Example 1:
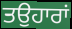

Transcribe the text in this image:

ਤਉਹਾਰਾਂ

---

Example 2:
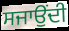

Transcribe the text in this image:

ਸਜਾਉਂਦੀ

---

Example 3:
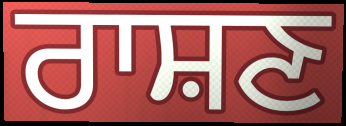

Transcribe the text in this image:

ਰਾਸ਼ਣ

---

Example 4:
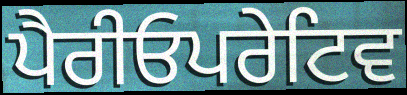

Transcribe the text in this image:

ਪੈਰੀਓਪਰੇਟਿਵ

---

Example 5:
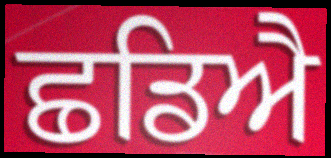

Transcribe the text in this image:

ਛਡਿਐ